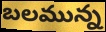
బలమున్న